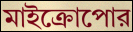
মাইক্রোপোর